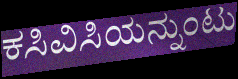
ಕಸಿವಿಸಿಯನ್ನುಂಟು